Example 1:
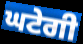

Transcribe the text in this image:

ਘਟੇਗੀ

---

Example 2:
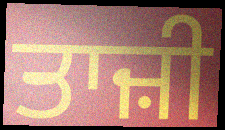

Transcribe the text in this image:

ਤਾਜ਼ੀ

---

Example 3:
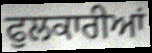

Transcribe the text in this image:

ਫੁਲਕਾਰੀਆਂ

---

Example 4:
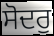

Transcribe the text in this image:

ਸੋਦਰੁ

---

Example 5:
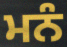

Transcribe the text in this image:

ਮਨੰ